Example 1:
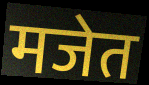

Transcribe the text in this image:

मजेत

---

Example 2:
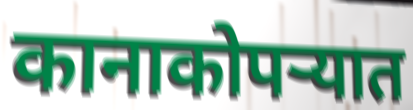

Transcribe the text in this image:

कानाकोपऱ्यात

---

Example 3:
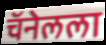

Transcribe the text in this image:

चॅनेलला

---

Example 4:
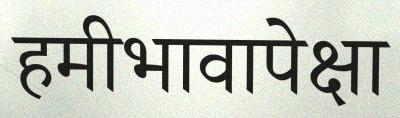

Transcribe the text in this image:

हमीभावापेक्षा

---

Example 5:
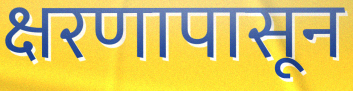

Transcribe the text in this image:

क्षरणापासून